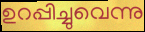
ഉറപ്പിച്ചുവെന്നു